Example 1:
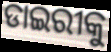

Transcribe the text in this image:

ଡାଇରୀକୁ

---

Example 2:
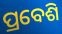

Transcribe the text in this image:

ପ୍ରବେଶି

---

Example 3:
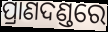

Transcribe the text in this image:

ପ୍ରାଣଦଣ୍ଡରେ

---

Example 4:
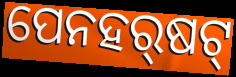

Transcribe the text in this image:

ପେନହର୍‍ଷଟ୍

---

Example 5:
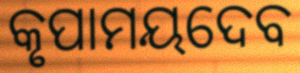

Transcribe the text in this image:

କୃପାମୟଦେବ